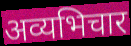
अव्यभिचार